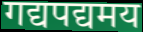
गद्यपद्यमय